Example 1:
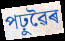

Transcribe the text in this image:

পঢ়ুৱৈৰ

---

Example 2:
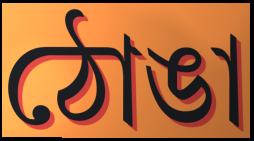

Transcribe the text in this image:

ঠোঙা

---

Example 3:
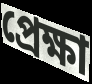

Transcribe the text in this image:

প্ৰেক্ষা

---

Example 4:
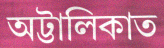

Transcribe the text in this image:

অট্টালিকাত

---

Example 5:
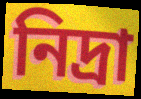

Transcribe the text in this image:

নিদ্ৰা